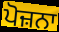
ਪੋਜ਼ਨਾ